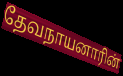
தேவநாயனாரின்